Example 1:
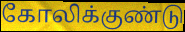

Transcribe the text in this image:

கோலிக்குண்டு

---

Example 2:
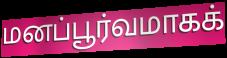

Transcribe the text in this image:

மனப்பூர்வமாகக்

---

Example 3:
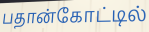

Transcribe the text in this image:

பதான்கோட்டில்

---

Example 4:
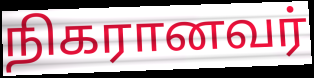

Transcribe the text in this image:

நிகரானவர்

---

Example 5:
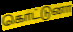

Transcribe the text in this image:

கொட்டுனா